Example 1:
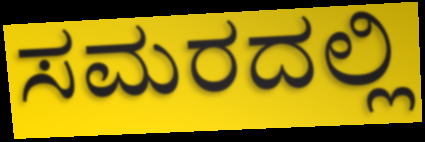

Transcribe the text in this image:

ಸಮರದಲ್ಲಿ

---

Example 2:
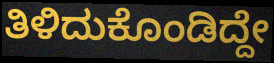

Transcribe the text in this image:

ತಿಳಿದುಕೊಂಡಿದ್ದೇ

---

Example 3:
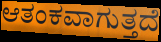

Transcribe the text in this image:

ಆತಂಕವಾಗುತ್ತದೆ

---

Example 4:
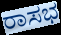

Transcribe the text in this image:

ರಾಸಭ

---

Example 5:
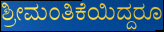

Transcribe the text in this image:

ಶ್ರೀಮಂತಿಕೆಯಿದ್ದರೂ